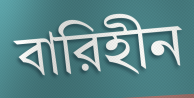
বারিহীন